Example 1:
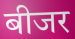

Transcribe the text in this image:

बीजर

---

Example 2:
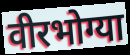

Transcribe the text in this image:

वीरभोग्या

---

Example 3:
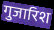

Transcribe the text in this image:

गुजारिश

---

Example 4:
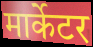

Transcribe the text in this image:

मार्केटर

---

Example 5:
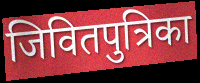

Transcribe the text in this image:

जिवितपुत्रिका